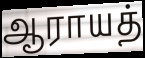
ஆராயத்